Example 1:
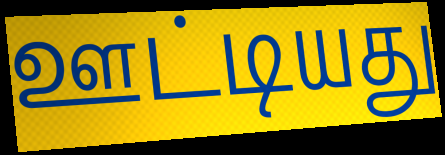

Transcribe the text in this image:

ஊட்டியது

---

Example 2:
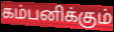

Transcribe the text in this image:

கம்பனிக்கும்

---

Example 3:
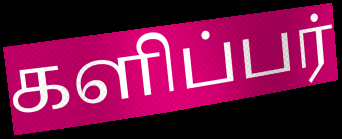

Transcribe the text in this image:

களிப்பர்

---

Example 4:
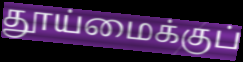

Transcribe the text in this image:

தூய்மைக்குப்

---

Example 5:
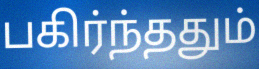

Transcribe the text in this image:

பகிர்ந்ததும்